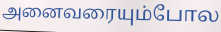
அனைவரையும்போல